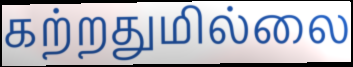
கற்றதுமில்லை